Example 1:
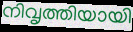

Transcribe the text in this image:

നിവൃത്തിയായി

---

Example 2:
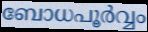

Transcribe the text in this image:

ബോധപൂർവ്വം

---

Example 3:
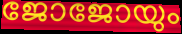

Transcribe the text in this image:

ജോജോയും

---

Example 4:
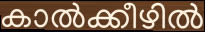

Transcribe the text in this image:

കാൽക്കീഴിൽ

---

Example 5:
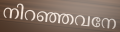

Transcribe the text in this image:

നിറഞ്ഞവനേ